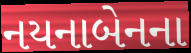
નયનાબેનના